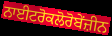
ਨਾਈਟਰੋਕਲੋਰੋਬੇਂਜ਼ੀਨ